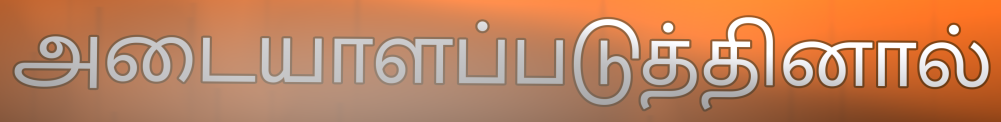
அடையாளப்படுத்தினால்